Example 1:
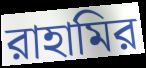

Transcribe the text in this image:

রাহামির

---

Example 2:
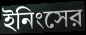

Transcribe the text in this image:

ইনিংসের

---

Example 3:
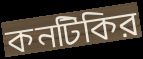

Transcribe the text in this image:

কনটিকির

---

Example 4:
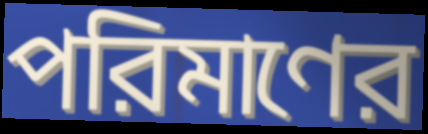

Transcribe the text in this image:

পরিমাণের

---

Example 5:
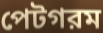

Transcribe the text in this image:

পেটগরম